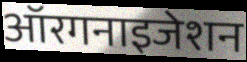
ऑरगनाइजेशन